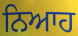
ਨਿਆਹ